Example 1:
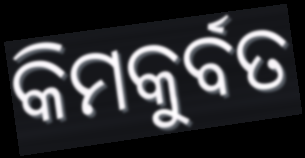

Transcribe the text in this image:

କିମକୁର୍ବତ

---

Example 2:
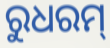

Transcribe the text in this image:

ରୁଧରମ୍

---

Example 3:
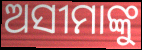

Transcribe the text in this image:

ଅସୀମାଙ୍କୁ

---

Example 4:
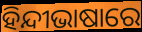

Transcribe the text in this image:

ହିନ୍ଦୀଭାଷାରେ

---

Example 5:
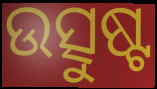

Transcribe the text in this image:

ଉତ୍ସୁଷ୍ଟ